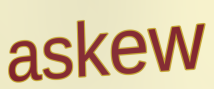
askew